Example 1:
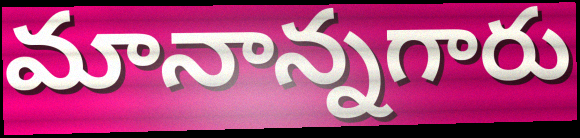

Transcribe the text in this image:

మానాన్నగారు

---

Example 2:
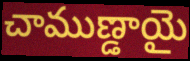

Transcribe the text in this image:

చాముణ్డాయై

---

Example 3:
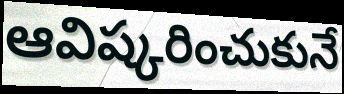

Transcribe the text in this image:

ఆవిష్కరించుకునే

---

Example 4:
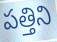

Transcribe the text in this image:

పత్తిని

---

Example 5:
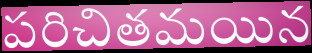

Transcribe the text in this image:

పరిచితమయిన